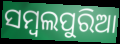
ସମ୍ୱଲପୁରିଆ